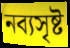
নব্যসৃষ্ট